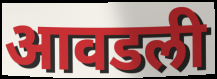
आवडली